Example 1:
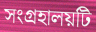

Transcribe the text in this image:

সংগ্রহালয়টি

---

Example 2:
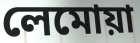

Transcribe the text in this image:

লেমোয়া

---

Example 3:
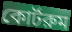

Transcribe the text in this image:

কোর্টরুম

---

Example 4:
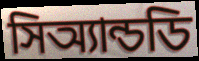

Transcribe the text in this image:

সিঅ্যান্ডডি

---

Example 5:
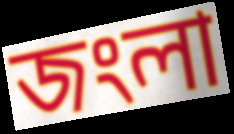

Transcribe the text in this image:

জংলা